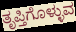
ತೃಪ್ತಿಗೊಳ್ಳುವ